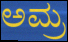
ಅಮ್ರ